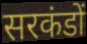
सरकंडों